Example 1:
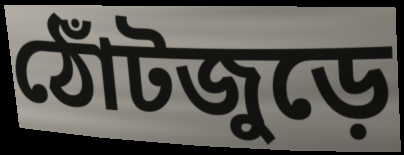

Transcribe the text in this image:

ঠোঁটজুড়ে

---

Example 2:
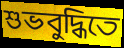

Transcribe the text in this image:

শুভবুদ্ধিতে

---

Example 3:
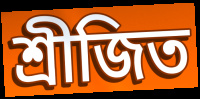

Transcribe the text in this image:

শ্রীজিত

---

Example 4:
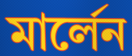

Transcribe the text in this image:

মার্লেন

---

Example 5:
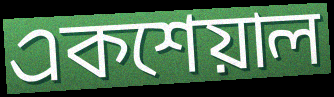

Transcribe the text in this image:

একশেয়াল